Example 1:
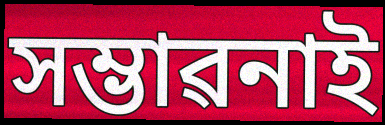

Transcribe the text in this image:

সম্ভাৱনাই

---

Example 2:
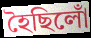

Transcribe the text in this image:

হৈছিলোঁ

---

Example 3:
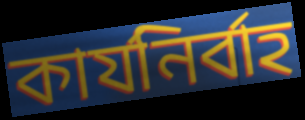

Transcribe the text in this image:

কাৰ্যনিৰ্বাহ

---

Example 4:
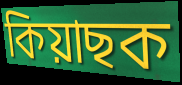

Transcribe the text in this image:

কিয়াছক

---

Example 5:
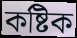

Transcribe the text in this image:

কষ্টিক